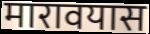
मारावयास